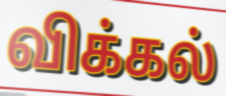
விக்கல்